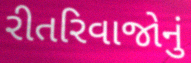
રીતરિવાજોનું